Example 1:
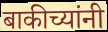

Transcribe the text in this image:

बाकीच्यांनी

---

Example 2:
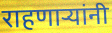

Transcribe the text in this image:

राहणार्‍यांनी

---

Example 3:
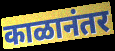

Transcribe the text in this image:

काळानंतर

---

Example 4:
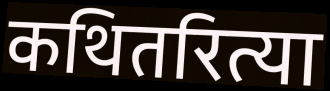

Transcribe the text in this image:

कथितरित्या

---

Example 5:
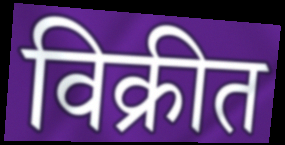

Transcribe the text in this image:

विक्रीत